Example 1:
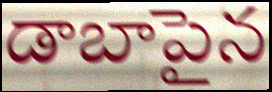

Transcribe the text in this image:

డాబాపైన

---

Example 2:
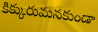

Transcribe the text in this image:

కిక్కురుమనకుండా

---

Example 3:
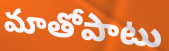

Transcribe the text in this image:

మాతోపాటు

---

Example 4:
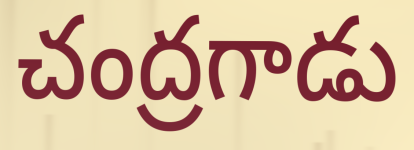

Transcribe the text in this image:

చంద్రగాడు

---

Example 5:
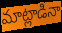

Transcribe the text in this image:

మాట్లాడినా